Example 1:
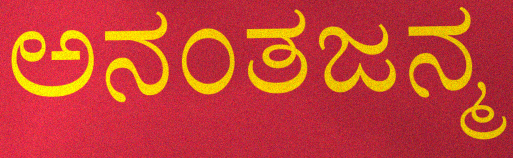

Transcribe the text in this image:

ಅನಂತಜನ್ಮ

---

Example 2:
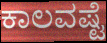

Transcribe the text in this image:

ಕಾಲವಷ್ಟೆ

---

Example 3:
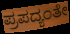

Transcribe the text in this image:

ಪ್ರಪದ್ಯಂತೇ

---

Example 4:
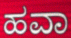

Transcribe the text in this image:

ಹವಾ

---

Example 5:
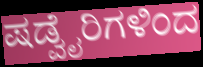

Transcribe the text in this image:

ಷಡ್ವೈರಿಗಳಿಂದ